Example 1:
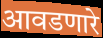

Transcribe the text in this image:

आवडणारे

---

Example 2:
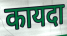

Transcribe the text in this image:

कायदा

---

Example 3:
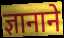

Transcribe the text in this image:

ज्ञानाने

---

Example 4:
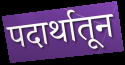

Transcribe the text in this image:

पदार्थातून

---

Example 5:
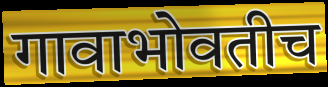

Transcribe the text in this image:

गावाभोवतीच